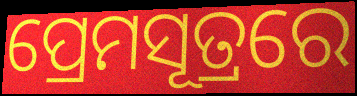
ପ୍ରେମସୂତ୍ରରେ